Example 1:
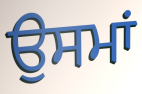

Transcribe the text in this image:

ਉਸਮਾਂ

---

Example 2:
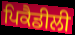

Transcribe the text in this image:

ਪਿਕੈਡੀਲੀ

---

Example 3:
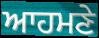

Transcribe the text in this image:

ਆਹਮਣੇ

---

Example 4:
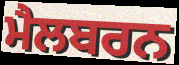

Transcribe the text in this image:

ਮੈਲਬਰਨ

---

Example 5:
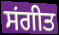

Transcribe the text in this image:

ਸਂਗੀਤ